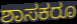
ಶಾಸಕರೂ